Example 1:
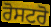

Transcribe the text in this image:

ਰੋਸਟਰੋ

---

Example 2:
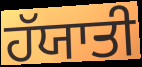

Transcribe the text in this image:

ਹੱਯਾਤੀ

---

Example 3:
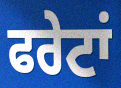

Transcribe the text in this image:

ਫਰੇਟਾਂ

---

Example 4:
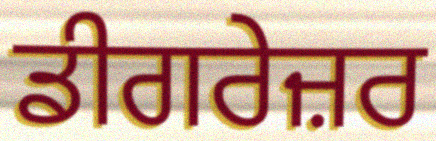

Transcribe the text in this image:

ਡੀਗਰੇਜ਼ਰ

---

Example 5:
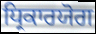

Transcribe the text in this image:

ਧ੍ਰਿਕਾਰਯੋਗ